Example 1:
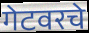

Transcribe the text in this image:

गेटवरचे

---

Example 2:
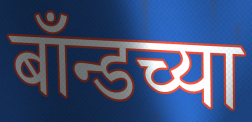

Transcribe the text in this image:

बाँन्डच्या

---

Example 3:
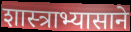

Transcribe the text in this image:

शास्त्राभ्यासाने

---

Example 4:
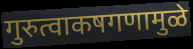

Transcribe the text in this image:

गुरुत्वाकषगणामुळे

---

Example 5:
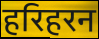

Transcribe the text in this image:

हरिहरन